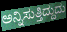
ಅನ್ನಿಸುತ್ತಿದ್ದುದು